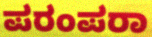
ಪರಂಪರಾ